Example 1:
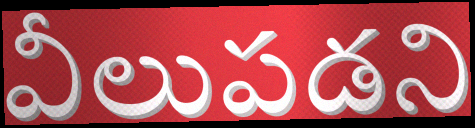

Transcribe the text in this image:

వీలుపడని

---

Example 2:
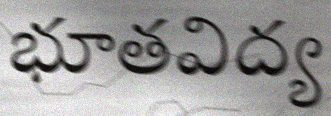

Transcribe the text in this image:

భూతవిద్య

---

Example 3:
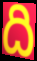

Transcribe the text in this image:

ది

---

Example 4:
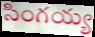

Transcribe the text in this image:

సింగయ్య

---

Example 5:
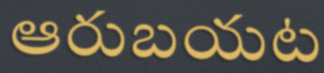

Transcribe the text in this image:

ఆరుబయట